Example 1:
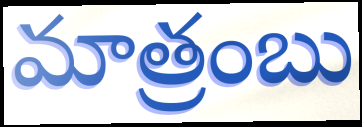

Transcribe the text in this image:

మాత్రంబు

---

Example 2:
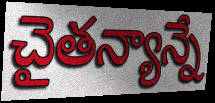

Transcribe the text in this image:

చైతన్యాన్నే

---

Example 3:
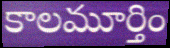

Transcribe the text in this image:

కాలమూర్తిం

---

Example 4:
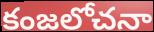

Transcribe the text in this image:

కంజలోచనా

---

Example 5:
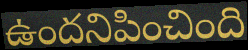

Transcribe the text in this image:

ఉందనిపించింది